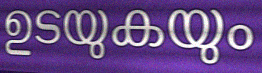
ഉടയുകയും